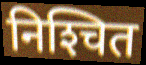
निश्‍चित